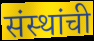
संस्थांची